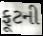
ફૂટની